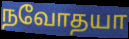
நவோதயா